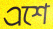
এশে